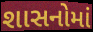
શાસનોમાં